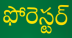
ఫోరెస్టర్